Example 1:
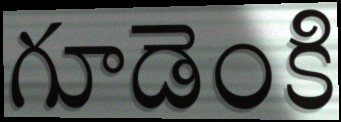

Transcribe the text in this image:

గూడెంకి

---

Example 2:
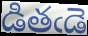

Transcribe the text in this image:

డితఁడె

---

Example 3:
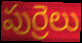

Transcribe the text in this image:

పుర్రెలు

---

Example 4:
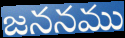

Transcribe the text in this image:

జననము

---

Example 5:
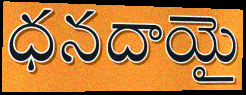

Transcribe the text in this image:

ధనదాయై